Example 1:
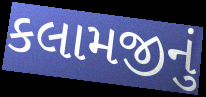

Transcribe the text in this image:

કલામજીનું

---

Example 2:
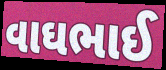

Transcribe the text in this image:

વાઘભાઈ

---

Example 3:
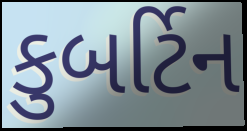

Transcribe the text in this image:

કુબર્ટિન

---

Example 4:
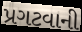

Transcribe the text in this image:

પ્રગટવાની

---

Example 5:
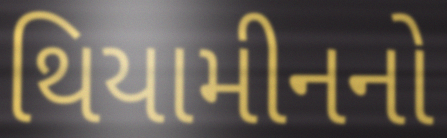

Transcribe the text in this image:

થિયામીનનો